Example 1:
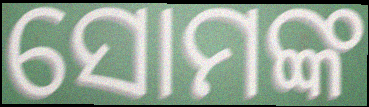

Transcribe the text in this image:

ସୋମଙ୍କ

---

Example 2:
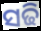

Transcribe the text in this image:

ସଢି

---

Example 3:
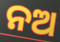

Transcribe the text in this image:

ନଅ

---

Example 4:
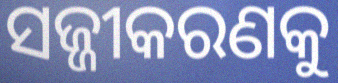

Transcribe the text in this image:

ସଜ୍ଜୀକରଣକୁ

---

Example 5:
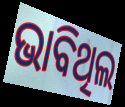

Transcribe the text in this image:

ଭାବିଥିଲ